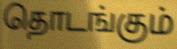
தொடங்கும்